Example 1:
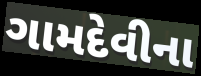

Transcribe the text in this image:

ગામદેવીના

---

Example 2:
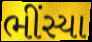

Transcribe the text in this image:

ભીંસ્યા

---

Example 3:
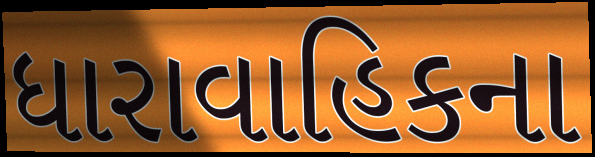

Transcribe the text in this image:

ધારાવાહિકના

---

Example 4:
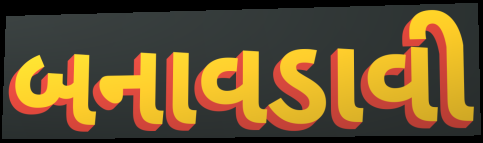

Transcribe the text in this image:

બનાવડાવી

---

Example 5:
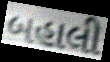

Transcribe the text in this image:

બહાલી